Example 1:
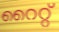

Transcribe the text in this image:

റൈറ്റ്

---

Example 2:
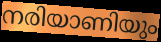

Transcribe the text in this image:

നരിയാണിയും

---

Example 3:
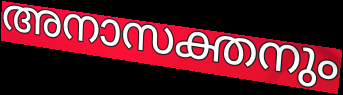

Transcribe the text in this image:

അനാസക്തനും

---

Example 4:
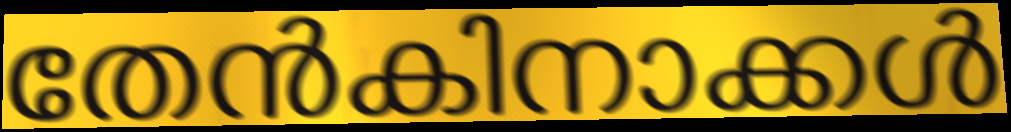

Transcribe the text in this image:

തേൻകിനാക്കൾ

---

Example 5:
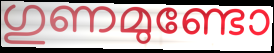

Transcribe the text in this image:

ഗുണമുണ്ടോ